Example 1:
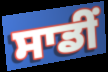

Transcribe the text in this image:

ਸਾਡੀਂ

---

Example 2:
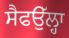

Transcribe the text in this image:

ਸੈਫਉੱਲ੍ਹਾ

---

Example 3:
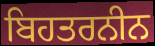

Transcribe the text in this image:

ਬਿਹਤਰਨੀਨ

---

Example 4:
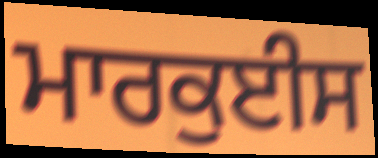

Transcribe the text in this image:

ਮਾਰਕੁਈਸ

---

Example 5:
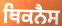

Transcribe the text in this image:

ਥਿਕਨੈਸ